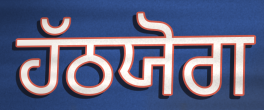
ਹੱਠਯੋਗ